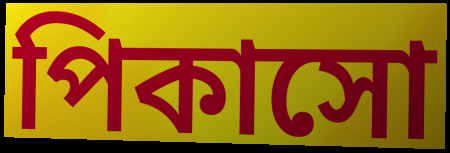
পিকাসো